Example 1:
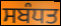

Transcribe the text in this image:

ਸਬੰਧਤ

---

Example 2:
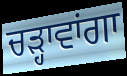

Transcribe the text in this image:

ਚੜ੍ਹਾਵਾਂਗਾ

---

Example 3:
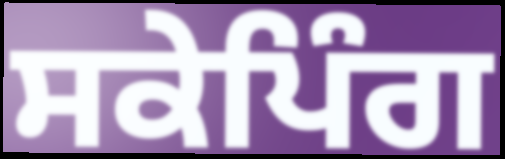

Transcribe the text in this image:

ਸਕੇਪਿੰਗ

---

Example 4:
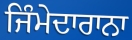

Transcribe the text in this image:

ਜਿੰਮੇਦਾਰਾਨਾ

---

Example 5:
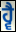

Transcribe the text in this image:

ਹ੍ਵੈ